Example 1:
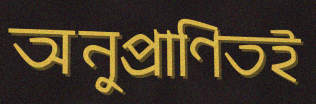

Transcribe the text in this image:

অনুপ্রাণিতই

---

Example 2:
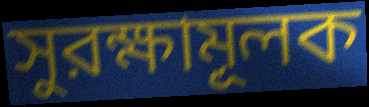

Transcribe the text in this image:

সুরক্ষামূলক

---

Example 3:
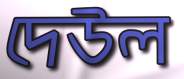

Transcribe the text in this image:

দেউল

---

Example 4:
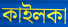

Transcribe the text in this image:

কাইলকা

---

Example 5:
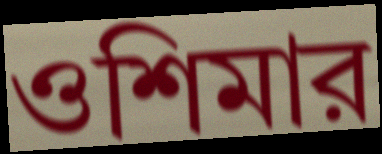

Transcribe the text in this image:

ওশিমার